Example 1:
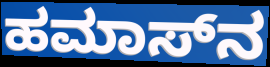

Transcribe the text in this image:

ಹಮಾಸ್‌ನ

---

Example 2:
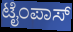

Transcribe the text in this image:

ಟೈಂಪಾಸ್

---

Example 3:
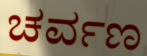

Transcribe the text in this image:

ಚರ್ವಣ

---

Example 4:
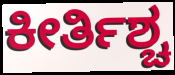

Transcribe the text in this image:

ಕೀರ್ತಿಶ್ಚ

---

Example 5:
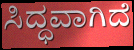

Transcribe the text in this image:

ಸಿದ್ಧವಾಗಿದೆ